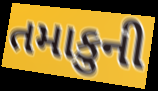
તમાકુની